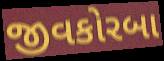
જીવકોરબા